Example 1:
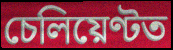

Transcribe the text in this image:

চেলিয়েণ্টত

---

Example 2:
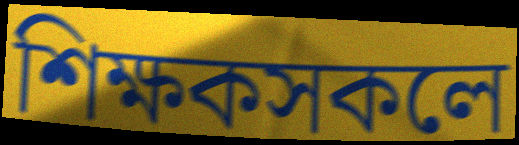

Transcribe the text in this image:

শিক্ষকসকলে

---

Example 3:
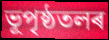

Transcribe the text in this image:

ভূপৃষ্ঠতলৰ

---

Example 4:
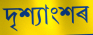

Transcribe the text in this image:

দৃশ্যাংশৰ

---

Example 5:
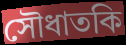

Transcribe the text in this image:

সৌধাতকি